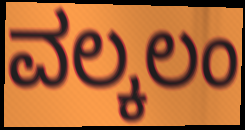
ವಲ್ಕಲಂ